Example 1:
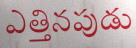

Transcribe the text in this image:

ఎత్తినపుడు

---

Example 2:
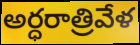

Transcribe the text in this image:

అర్ధరాత్రివేళ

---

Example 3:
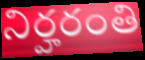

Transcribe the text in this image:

నిర్హరంతి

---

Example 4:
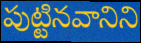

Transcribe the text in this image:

పుట్టినవానిని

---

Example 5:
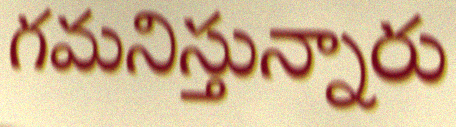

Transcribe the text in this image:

గమనిస్తున్నారు